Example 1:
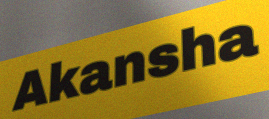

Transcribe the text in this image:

Akansha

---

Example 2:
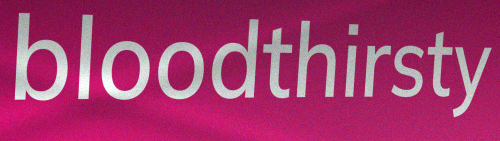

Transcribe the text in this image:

bloodthirsty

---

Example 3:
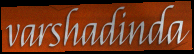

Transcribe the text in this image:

varshadinda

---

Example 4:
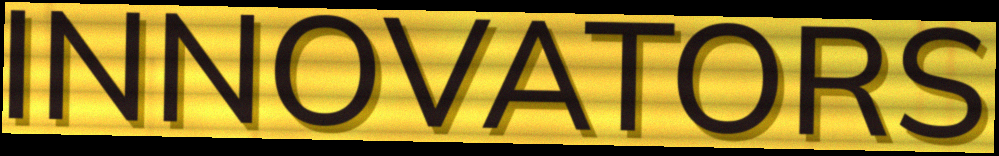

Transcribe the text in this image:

INNOVATORS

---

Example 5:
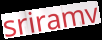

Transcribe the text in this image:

sriramv